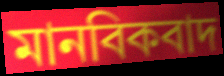
মানবিকবাদ